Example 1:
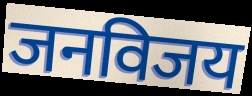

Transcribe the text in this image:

जनविजय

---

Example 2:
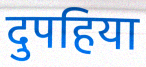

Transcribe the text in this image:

दुपहिया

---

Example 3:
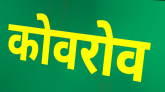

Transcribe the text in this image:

कोवरोव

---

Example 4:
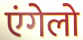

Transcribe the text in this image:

एंगेलो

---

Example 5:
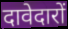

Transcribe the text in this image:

दावेदारों